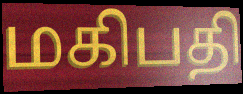
மகிபதி